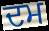
ਦਮ